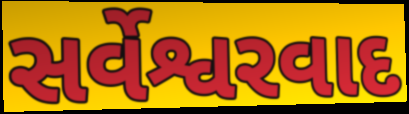
સર્વેશ્વરવાદ